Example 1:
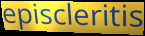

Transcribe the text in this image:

episcleritis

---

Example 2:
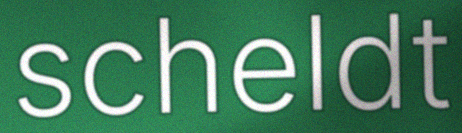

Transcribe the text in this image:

scheldt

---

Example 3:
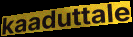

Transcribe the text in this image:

kaaduttale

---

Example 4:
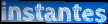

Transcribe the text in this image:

instantes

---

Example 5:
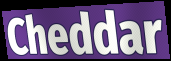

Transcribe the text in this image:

Cheddar